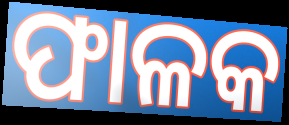
ଫାଳକ